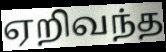
ஏறிவந்த